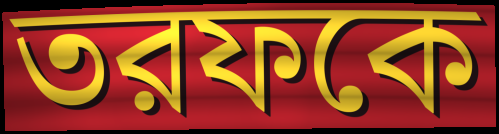
তরফকে